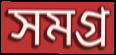
সমগ্র